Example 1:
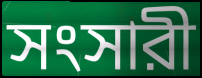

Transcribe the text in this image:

সংসারী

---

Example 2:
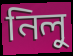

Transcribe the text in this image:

নিলু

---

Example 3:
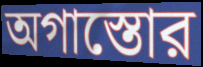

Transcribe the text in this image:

অগাস্তোর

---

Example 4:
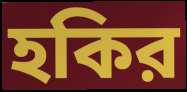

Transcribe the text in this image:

হকির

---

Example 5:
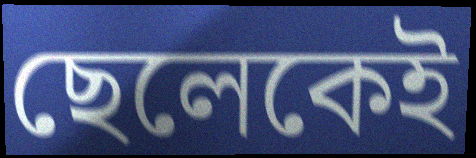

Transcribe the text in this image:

ছেলেকেই